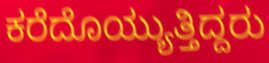
ಕರೆದೊಯ್ಯುತ್ತಿದ್ದರು